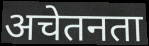
अचेतनता